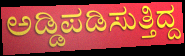
ಅಡ್ಡಿಪಡಿಸುತ್ತಿದ್ದ